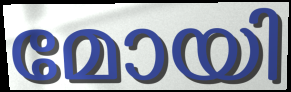
മോയി